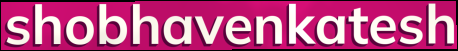
shobhavenkatesh